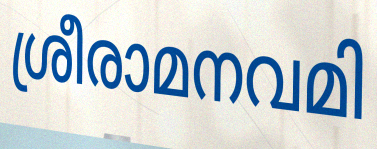
ശ്രീരാമനവമി